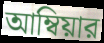
আম্বিয়ার